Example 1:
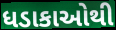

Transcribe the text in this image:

ધડાકાઓથી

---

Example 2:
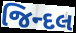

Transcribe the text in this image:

જિન્દલ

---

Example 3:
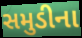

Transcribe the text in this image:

સમુડીના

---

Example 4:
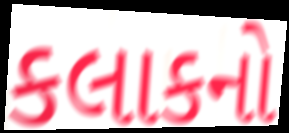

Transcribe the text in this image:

કલાકનો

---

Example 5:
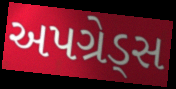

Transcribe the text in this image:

અપગ્રેડ્સ